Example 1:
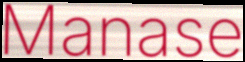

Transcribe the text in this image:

Manase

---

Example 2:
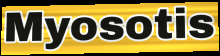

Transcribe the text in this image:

Myosotis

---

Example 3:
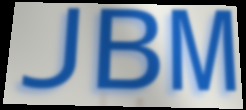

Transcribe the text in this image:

JBM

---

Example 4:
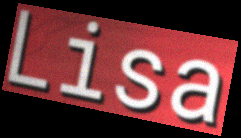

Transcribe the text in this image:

Lisa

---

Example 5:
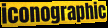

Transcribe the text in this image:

iconographic